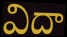
విదా